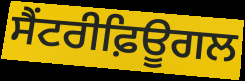
ਸੈਂਟਰੀਫ਼ਿਊਗਲ